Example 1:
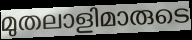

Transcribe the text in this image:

മുതലാളിമാരുടെ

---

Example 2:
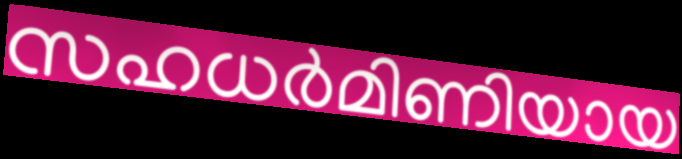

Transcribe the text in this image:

സഹധർമിണിയായ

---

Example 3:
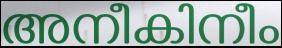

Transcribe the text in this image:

അനീകിനീം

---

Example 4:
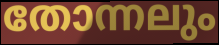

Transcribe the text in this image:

തോന്നലും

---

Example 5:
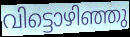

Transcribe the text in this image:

വിട്ടൊഴിഞ്ഞു